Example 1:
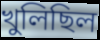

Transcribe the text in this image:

খুলিছিল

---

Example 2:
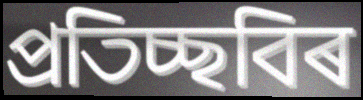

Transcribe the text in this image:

প্ৰতিচ্ছবিৰ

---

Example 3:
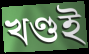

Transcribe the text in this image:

খণ্ডই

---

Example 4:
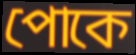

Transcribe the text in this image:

পোকে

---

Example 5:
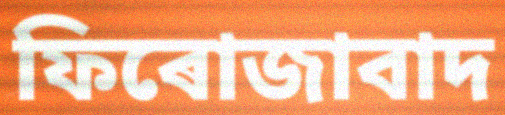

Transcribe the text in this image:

ফিৰোজাবাদ